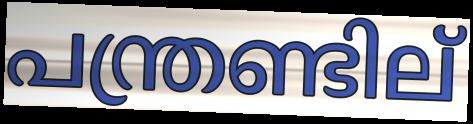
പന്ത്രണ്ടില്